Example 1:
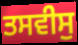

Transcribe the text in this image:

ਤਸਵੀਸੁ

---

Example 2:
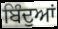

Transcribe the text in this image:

ਬਿੰਦੁਆਂ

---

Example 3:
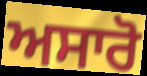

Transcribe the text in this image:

ਅਸਾਰੋ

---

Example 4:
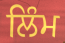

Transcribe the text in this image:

ਲਿੰਮ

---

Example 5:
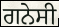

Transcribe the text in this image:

ਗਨੇਸੀ